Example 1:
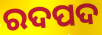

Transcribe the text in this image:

ରଦପଦ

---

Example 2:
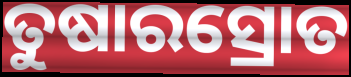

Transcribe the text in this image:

ତୁଷାରସ୍ରୋତ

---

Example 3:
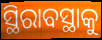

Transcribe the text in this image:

ସ୍ଥିରାବସ୍ଥାକୁ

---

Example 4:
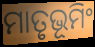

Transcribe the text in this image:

ମାତୃଭୂମିଂ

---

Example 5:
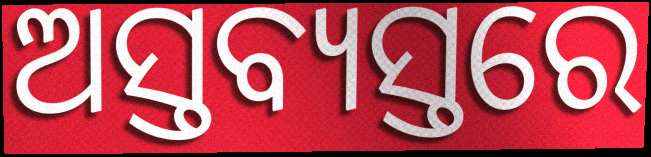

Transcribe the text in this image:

ଅସ୍ତବ୍ୟସ୍ତରେ